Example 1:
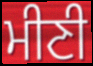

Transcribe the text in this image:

ਮੀਣੀ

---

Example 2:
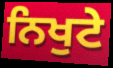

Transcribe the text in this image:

ਨਿਖੁਟੇ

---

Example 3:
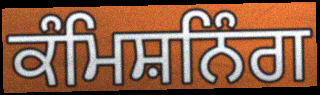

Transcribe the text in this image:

ਕੰਮਿਸ਼ਨਿੰਗ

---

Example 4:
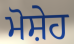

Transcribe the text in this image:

ਮੋਸ਼ੇਹ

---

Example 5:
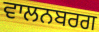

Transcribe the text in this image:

ਵਾਲਨਬਰਗ